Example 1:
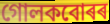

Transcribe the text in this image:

গোলকবোৰৰ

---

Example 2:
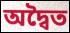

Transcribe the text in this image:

অদ্বৈত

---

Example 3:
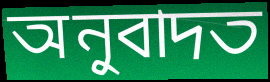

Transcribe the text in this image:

অনুবাদত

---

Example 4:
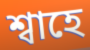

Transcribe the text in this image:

শ্বাহে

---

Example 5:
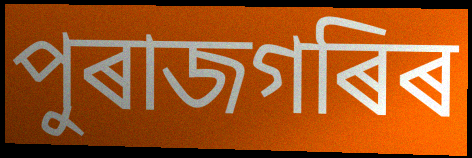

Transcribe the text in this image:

পুৰাজগৰিৰ